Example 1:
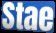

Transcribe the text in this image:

Stae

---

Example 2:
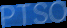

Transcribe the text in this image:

PTSO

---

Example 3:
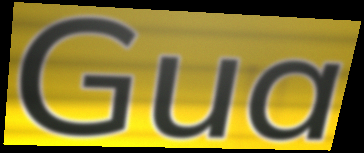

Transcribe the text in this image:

Gua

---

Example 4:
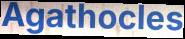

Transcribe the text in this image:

Agathocles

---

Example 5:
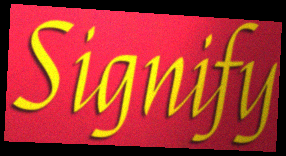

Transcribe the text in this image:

Signify